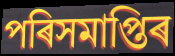
পৰিসমাপ্তিৰ